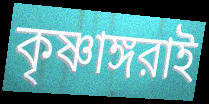
কৃষ্ণাঙ্গরাই